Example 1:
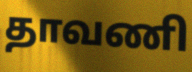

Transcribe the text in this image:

தாவணி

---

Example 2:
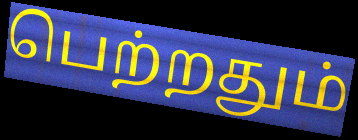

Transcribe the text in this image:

பெற்றதும்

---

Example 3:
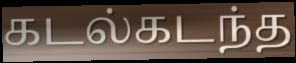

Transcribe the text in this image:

கடல்கடந்த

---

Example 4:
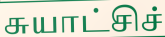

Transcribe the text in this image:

சுயாட்சிச்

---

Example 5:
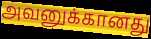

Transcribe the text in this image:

அவனுக்கானது